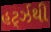
હર્ટ્ઝથી